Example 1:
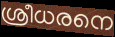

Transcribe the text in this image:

ശ്രീധരനെ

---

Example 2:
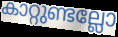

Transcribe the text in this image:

കാറ്റുണ്ടല്ലോ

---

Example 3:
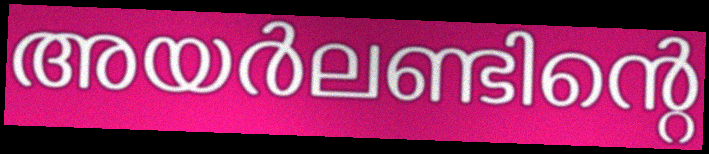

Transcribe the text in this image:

അയർലണ്ടിന്റെ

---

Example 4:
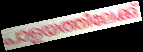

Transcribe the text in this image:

പാളയത്തിലേക്കു്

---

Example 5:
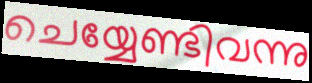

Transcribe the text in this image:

ചെയ്യേണ്ടിവന്നു